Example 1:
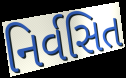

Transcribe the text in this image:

નિર્વસિત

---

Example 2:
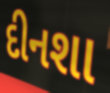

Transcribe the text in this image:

દીનશા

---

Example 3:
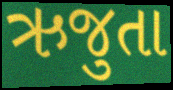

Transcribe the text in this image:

ઋજુતા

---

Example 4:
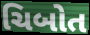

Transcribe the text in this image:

ચિબોત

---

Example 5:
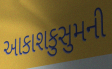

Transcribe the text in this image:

આકાશકુસુમની